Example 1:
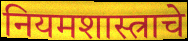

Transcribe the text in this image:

नियमशास्त्राचे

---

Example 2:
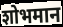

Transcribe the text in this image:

शोभमान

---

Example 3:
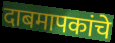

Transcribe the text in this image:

दाबमापकांचे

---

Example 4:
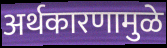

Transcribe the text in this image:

अर्थकारणामुळे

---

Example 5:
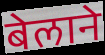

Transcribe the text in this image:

बेलाने